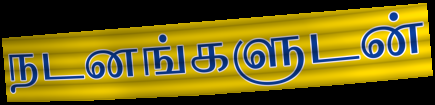
நடனங்களுடன்